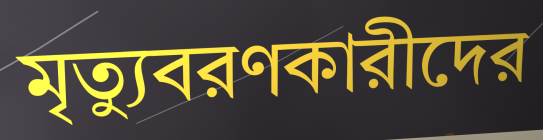
মৃত্যুবরণকারীদের